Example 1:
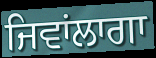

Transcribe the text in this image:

ਜਿਵਾਂਲਾਗਾ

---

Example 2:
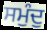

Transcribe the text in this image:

ਸਮੁੰਦੁ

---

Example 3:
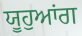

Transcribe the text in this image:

ਯੂਹੁਆਂਗ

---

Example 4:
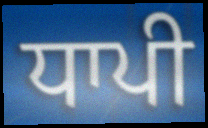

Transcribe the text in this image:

ਧਾਪੀ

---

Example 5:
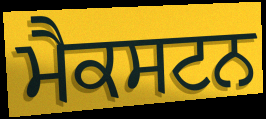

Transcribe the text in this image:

ਮੈਕਸਟਨ